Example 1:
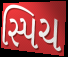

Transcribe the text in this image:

સ્પિચ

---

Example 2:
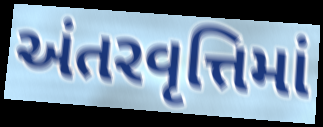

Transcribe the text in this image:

અંતરવૃત્તિમાં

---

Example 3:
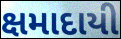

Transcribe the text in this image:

ક્ષમાદાયી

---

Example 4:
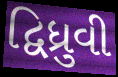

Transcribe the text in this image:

દ્વિધ્રુવી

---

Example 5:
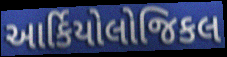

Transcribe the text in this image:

આર્કિયોલોજિકલ